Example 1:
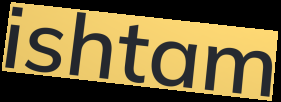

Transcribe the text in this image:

ishtam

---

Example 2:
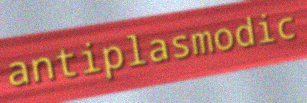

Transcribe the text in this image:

antiplasmodic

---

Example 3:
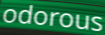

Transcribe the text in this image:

odorous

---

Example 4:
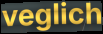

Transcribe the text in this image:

veglich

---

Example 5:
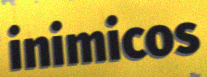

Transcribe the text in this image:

inimicos